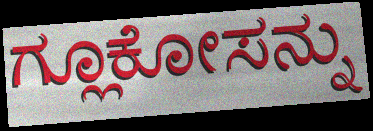
ಗ್ಲೂಕೋಸನ್ನು